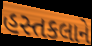
હસ્તકલાને